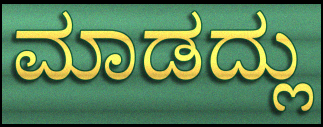
ಮಾಡದ್ಲು